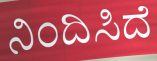
ನಿಂದಿಸಿದೆ